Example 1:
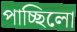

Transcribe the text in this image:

পাচ্ছিলো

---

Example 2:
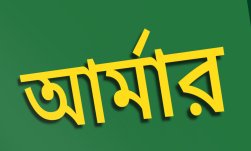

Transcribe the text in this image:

আর্মার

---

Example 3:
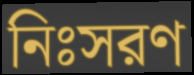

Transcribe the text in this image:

নিঃসরণ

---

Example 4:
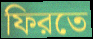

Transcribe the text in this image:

ফিরতে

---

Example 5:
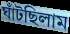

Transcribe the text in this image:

ঘাঁটছিলাম